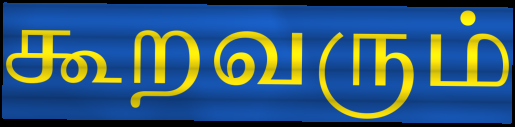
கூறவரும்